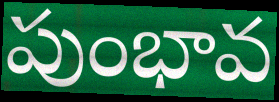
పుంభావ